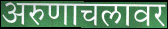
अरुणाचलावर